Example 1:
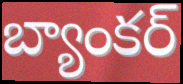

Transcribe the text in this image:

బ్యాంకర్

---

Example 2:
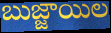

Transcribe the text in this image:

బుజ్జాయిల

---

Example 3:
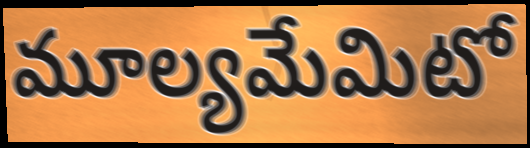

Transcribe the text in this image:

మూల్యమేమిటో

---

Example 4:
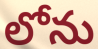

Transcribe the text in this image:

లోను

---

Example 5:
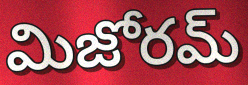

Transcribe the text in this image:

మిజోరమ్